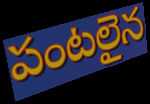
పంటలైన